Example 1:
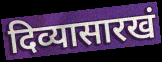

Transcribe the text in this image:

दिव्यासारखं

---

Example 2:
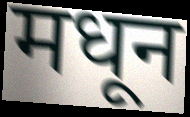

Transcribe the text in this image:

मधून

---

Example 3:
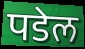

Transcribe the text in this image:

पडेल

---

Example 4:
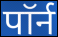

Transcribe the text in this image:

पॉर्न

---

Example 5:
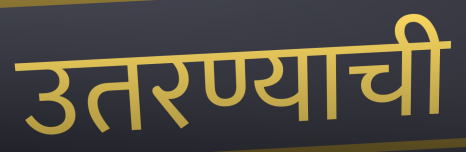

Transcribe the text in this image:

उतरण्याची